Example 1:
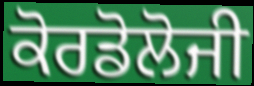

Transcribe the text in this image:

ਕੋਰਡੋਲੋਜੀ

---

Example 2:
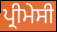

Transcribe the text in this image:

ਪ੍ਰੀਮੇਸੀ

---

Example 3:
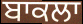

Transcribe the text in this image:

ਬਾਕਲਾ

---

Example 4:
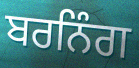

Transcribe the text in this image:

ਬਰਨਿੰਗ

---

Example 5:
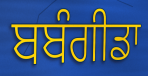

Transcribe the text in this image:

ਬਬੰਗੀਡਾ